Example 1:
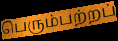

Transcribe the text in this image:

பெரும்பற்றப்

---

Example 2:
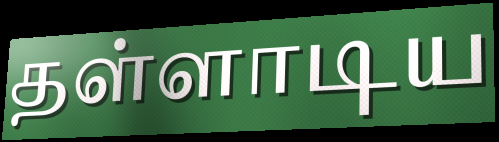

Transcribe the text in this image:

தள்ளாடிய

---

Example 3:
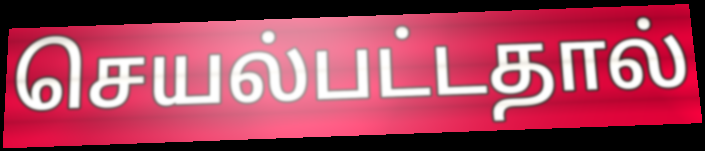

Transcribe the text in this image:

செயல்பட்டதால்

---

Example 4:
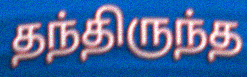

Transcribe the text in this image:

தந்திருந்த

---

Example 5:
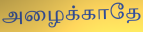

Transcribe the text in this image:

அழைக்காதே